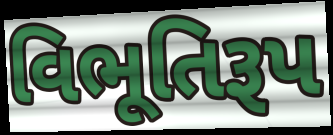
વિભૂતિરૂપ